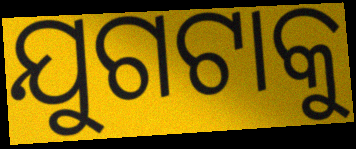
ଯୁଗଟାକୁ